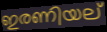
ഇരണിയല്